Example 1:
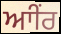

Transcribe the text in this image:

ਆੀਂਰ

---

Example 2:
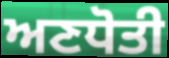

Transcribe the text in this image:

ਅਣਧੋਤੀ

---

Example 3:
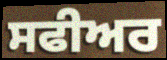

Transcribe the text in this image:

ਸਫੀਅਰ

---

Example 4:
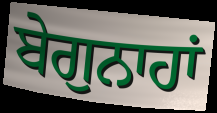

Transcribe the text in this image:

ਬੇਗੁਨਾਹਾਂ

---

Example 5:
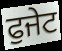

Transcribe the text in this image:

ਫੁਜੇਟ